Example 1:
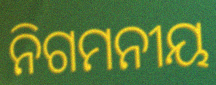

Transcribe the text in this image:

ନିଗମନୀୟ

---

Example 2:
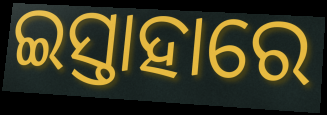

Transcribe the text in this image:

ଇସ୍ତାହାରେ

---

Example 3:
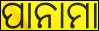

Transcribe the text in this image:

ପାନାମା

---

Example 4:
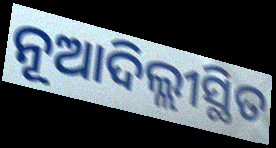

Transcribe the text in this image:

ନୂଆଦିଲ୍ଲୀସ୍ଥିତ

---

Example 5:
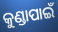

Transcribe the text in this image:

କୁଣ୍ଡାପାଇଁ